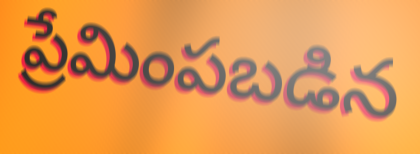
ప్రేమింపబడిన